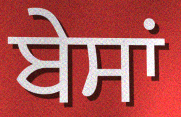
ਬੇਸਾਂ